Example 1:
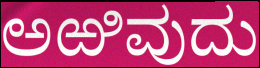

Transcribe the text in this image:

ಅಱಿವುದು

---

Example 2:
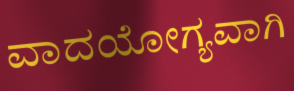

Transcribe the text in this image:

ವಾದಯೋಗ್ಯವಾಗಿ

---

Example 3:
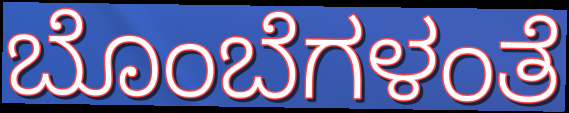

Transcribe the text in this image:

ಬೊಂಬೆಗಳಂತೆ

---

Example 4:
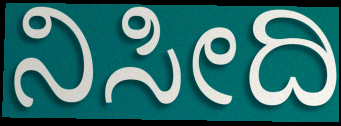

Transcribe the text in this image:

ನಿಸೀದಿ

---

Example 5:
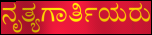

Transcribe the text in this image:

ನೃತ್ಯಗಾರ್ತಿಯರು